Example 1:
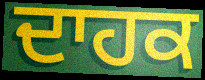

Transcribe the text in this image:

ਦਾਹਕ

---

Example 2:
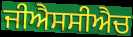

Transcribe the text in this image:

ਜੀਐਸਸੀਐਚ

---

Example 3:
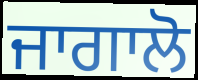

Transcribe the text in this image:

ਜਾਗਾਲੋ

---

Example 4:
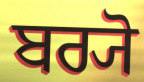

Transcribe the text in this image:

ਬਰ੍ਯੋ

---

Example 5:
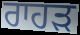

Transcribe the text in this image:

ਰਾਹੜ